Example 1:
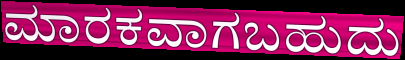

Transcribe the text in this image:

ಮಾರಕವಾಗಬಹುದು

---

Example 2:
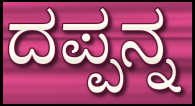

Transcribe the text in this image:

ದಪ್ಪನ್ನ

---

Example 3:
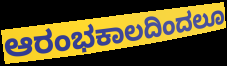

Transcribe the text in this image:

ಆರಂಭಕಾಲದಿಂದಲೂ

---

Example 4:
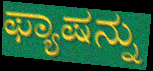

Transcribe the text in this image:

ಫ್ಯಾಷನ್ನು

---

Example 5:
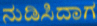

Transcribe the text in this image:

ನುಡಿಸಿದಾಗ